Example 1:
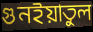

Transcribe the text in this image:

গুনইয়াতুল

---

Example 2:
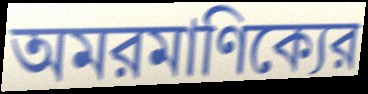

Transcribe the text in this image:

অমরমাণিক্যের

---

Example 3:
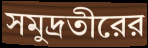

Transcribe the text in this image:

সমুদ্রতীরের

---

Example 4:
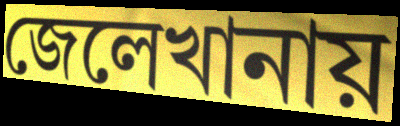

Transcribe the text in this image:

জেলেখানায়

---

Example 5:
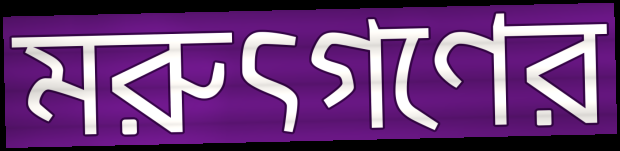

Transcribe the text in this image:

মরুৎগণের